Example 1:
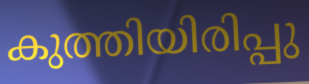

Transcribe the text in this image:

കുത്തിയിരിപ്പു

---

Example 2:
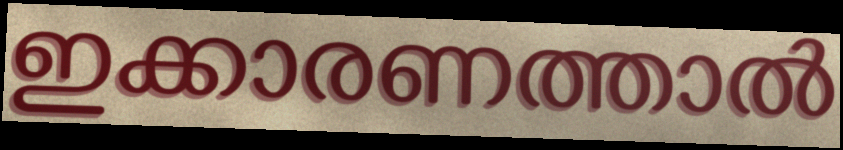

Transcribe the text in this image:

ഇക്കാരണത്താൽ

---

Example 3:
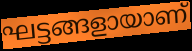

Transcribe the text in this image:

ഘട്ടങ്ങളായാണ്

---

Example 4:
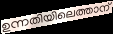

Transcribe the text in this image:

ഉന്നതിയിലെത്താന്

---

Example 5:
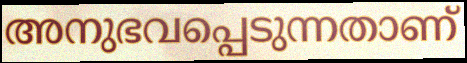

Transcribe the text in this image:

അനുഭവപ്പെടുന്നതാണ്